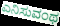
ಎನಿಸುವಂಥ